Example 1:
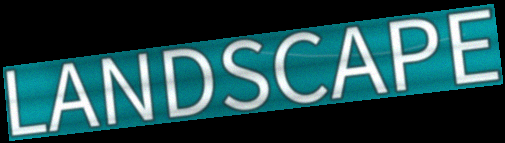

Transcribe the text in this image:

LANDSCAPE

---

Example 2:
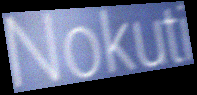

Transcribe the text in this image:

Nokuti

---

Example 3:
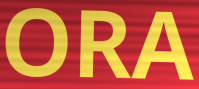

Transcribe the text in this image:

ORA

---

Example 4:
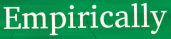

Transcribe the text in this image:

Empirically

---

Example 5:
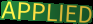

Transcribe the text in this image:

APPLIED